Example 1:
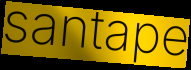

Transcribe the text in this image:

santape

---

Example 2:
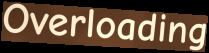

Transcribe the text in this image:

Overloading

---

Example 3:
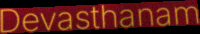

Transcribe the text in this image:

Devasthanam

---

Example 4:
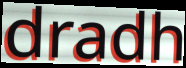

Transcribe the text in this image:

dradh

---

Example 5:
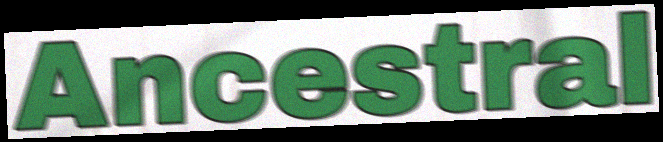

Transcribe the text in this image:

Ancestral